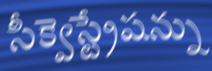
సీక్వెస్ట్రేషన్ను